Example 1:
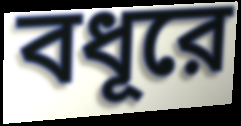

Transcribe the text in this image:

বধূরে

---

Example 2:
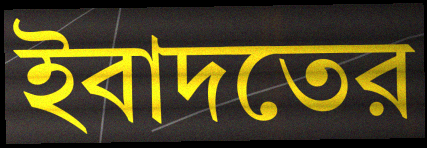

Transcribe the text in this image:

ইবাদতের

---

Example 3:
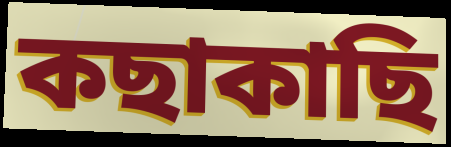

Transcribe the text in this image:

কছাকাছি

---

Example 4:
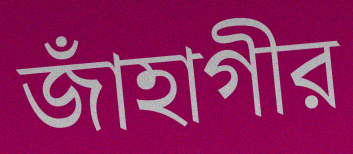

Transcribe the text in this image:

জাঁহাগীর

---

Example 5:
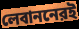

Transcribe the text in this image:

লেবাননেরই